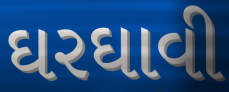
ઘરઘાવી